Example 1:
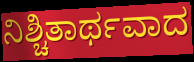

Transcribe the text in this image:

ನಿಶ್ಚಿತಾರ್ಥವಾದ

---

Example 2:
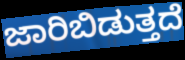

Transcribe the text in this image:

ಜಾರಿಬಿಡುತ್ತದೆ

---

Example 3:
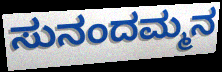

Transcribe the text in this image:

ಸುನಂದಮ್ಮನ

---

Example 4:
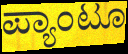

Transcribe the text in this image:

ಪ್ಯಾಂಟೂ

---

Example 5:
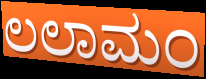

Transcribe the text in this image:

ಲಲಾಮಂ